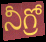
నీగ్రో